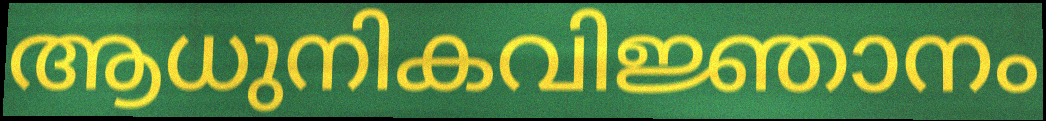
ആധുനികവിജ്ഞാനം